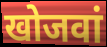
खोजवां